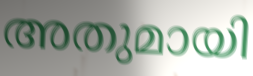
അതുമായി